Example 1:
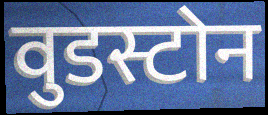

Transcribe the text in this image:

वुडस्टोन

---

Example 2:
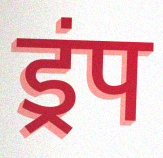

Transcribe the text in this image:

ड्रंप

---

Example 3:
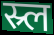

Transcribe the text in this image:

स्र्ल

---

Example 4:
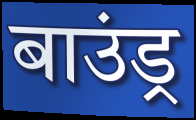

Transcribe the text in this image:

बाउंड्र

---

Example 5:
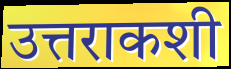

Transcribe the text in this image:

उत्तराकशी